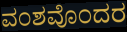
ವಂಶವೊಂದರ